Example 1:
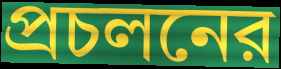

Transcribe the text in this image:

প্রচলনের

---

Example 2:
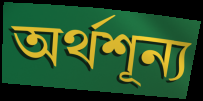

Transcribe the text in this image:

অর্থশূন্য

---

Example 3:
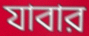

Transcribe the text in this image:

যাবার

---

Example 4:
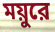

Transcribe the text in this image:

ময়ুরে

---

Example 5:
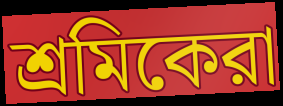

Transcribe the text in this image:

শ্রমিকেরা